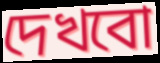
দেখবো